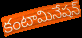
కంటామినేషన్